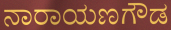
ನಾರಾಯಣಗೌಡ